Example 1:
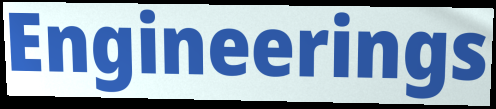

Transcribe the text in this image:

Engineerings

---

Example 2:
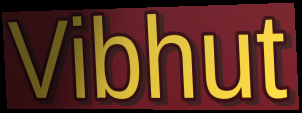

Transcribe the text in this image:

Vibhut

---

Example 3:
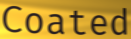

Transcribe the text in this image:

Coated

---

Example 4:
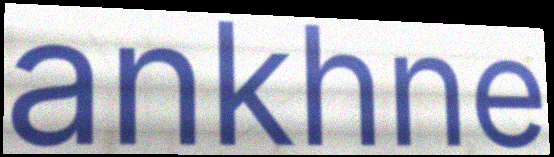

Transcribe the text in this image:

ankhne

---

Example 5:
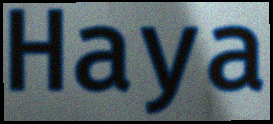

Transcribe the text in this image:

Haya